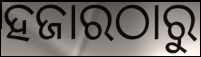
ହଜାରଠାରୁ